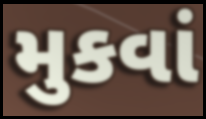
મુકવાં